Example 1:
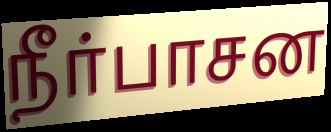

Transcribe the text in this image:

நீர்பாசன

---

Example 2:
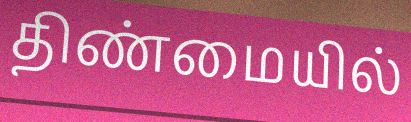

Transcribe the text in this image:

திண்மையில்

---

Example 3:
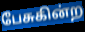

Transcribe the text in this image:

பேசுகின்ற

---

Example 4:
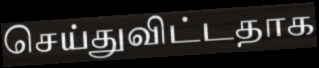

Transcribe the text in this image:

செய்துவிட்டதாக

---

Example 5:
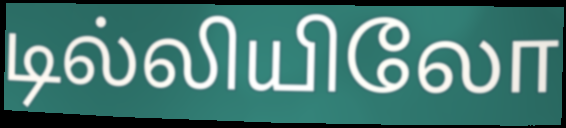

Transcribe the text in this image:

டில்லியிலோ